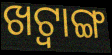
ଖଟ୍ଵାଙ୍ଗ